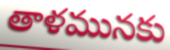
తాళమునకు